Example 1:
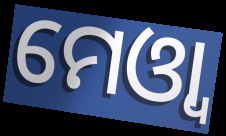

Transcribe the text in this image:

ମେଓ୍ୱା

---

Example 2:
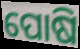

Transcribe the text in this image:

ପୋଷି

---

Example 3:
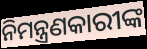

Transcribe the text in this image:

ନିମନ୍ତ୍ରଣକାରୀଙ୍କ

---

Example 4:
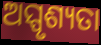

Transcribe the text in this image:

ଅସ୍ପୃଶ୍ୟତା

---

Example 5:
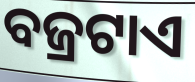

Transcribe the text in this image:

ବଜ୍ରଟାଏ